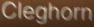
Cleghorn